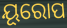
ୟୂରୋପ